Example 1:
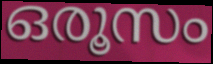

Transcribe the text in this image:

ഒരൂസം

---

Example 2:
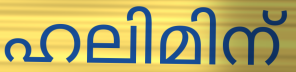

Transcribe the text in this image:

ഹലിമിന്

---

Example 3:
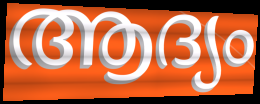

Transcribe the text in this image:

ആദ്യം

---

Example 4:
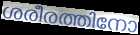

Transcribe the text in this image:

ശരീരത്തിനോ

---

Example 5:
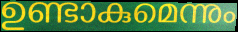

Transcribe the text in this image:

ഉണ്ടാകുമെന്നും